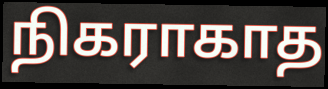
நிகராகாத